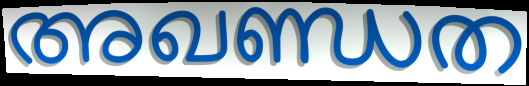
അഖണ്ഡത